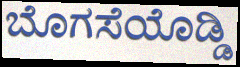
ಬೊಗಸೆಯೊಡ್ಡಿ